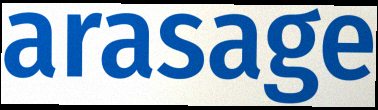
arasage